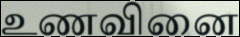
உணவினை